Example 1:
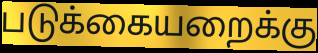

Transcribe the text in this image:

படுக்கையறைக்கு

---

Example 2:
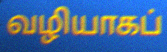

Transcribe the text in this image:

வழியாகப்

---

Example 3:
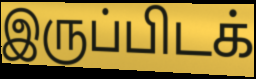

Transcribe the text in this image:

இருப்பிடக்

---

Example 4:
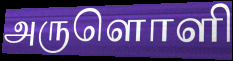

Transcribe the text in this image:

அருளொளி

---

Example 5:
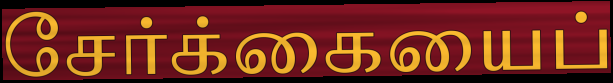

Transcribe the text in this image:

சேர்க்கையைப்